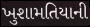
ખુશામતિયાની